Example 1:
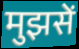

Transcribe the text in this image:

मुझसें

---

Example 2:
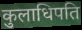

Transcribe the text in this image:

कुलाधिपति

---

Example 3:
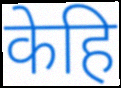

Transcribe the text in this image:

केहि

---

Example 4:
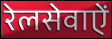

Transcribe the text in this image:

रेलसेवाऐं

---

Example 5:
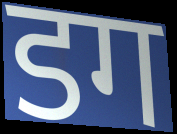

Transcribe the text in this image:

डग